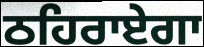
ਠਹਿਰਾਏਗਾ